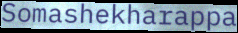
Somashekharappa